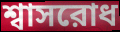
শ্বাসরোধ